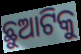
ଛୁଆଟିକୁ